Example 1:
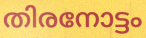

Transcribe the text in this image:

തിരനോട്ടം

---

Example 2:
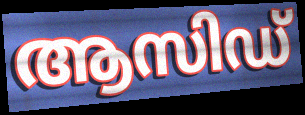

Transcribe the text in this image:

ആസിഡ്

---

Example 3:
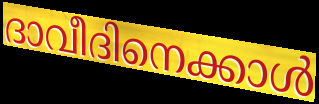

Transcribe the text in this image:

ദാവീദിനെക്കാൾ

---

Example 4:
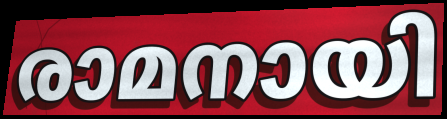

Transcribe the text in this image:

രാമനായി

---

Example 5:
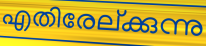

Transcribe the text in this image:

എതിരേല്ക്കുന്നു